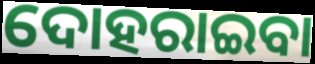
ଦୋହରାଇବା